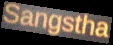
Sangstha